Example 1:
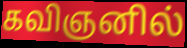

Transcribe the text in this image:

கவிஞனில்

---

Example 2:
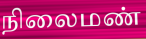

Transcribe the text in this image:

நிலைமண்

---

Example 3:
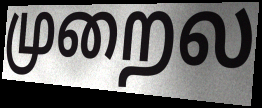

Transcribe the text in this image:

முறைல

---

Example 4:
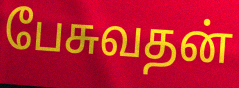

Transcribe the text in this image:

பேசுவதன்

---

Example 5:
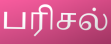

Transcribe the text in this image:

பரிசல்